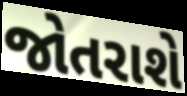
જોતરાશે